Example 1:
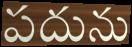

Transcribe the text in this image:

పదును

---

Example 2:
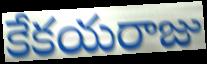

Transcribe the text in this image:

కేకయరాజు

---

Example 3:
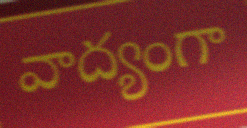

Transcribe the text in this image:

వాద్యంగా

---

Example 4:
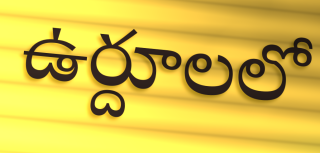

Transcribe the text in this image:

ఉర్దూలలో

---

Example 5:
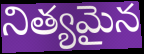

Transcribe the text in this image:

నిత్యమైన